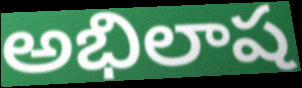
అభిలాష